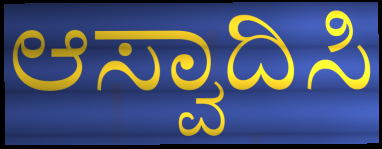
ಆಸ್ವಾದಿಸಿ